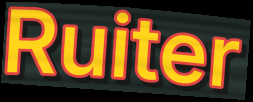
Ruiter